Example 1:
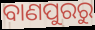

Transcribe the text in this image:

ବାଣପୁରରୁ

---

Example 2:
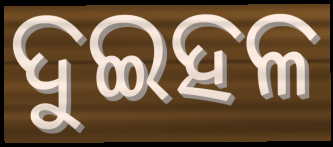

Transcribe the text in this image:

ଦୁଇହଳ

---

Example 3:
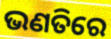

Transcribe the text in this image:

ଭଣତିରେ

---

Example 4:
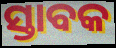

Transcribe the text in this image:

ସ୍ତାବକ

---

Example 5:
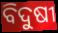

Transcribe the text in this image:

ବିଦୁଷୀ